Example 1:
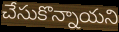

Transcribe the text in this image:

చేసుకొన్నాయని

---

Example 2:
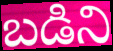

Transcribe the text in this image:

బడిని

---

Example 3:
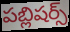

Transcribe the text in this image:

పబ్లిషర్స్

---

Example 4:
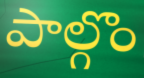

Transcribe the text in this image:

పాల్గొం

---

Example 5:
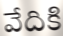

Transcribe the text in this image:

వేదికి